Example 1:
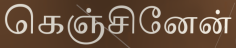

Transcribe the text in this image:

கெஞ்சினேன்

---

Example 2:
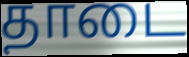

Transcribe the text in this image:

தாடை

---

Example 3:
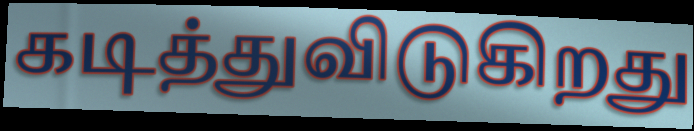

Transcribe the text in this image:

கடித்துவிடுகிறது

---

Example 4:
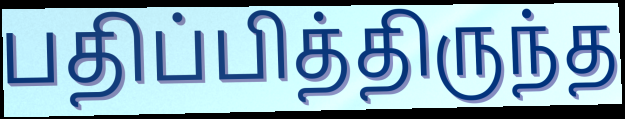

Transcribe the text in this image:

பதிப்பித்திருந்த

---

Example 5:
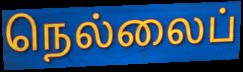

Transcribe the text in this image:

நெல்லைப்